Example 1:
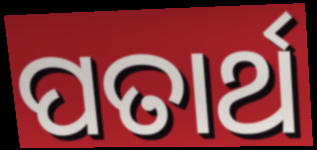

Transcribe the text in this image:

ପତାର୍ଥ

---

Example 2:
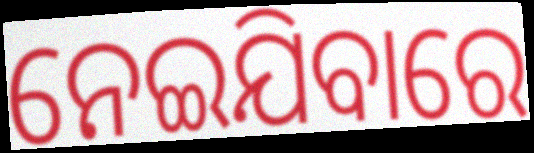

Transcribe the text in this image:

ନେଇଯିବାରେ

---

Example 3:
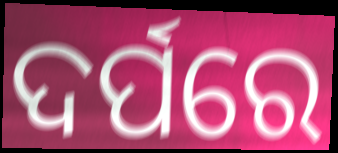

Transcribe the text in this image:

ଦର୍ପରେ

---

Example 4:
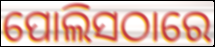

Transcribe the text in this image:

ପୋଲିସଠାରେ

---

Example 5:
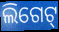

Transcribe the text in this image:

ଲିଗେଟ୍